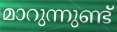
മാറുന്നുണ്ട്